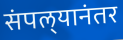
संपल्यानंतर